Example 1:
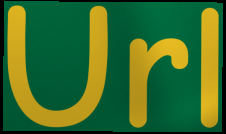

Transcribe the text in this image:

Url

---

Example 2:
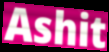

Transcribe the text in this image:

Ashit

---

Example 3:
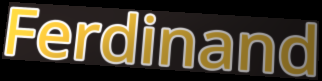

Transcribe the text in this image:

Ferdinand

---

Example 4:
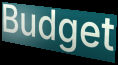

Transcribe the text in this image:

Budget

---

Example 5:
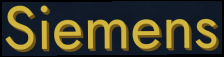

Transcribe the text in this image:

Siemens